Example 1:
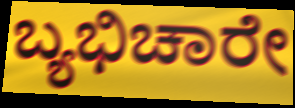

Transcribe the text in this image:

ಬ್ಯಭಿಚಾರೇ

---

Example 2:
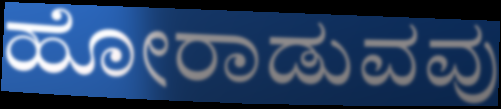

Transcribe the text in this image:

ಹೋರಾಡುವವು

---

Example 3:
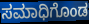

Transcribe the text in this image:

ಸಮಾಧಿಗೊಂಡ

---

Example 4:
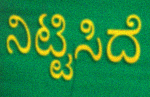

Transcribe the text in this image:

ನಿಟ್ಟಿಸಿದೆ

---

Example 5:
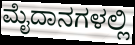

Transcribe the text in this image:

ಮೈದಾನಗಳಲ್ಲಿ